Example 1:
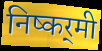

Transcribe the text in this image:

निष्कर्मी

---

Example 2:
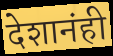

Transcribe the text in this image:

देशानंही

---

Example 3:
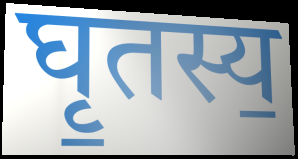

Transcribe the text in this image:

घृ॒तस्य॒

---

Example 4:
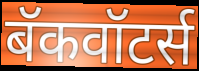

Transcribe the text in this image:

बॅकवॉटर्स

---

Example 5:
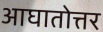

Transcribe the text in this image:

आघातोत्तर